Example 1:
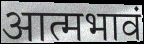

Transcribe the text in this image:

आत्मभावं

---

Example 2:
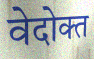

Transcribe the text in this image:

वेदोक्त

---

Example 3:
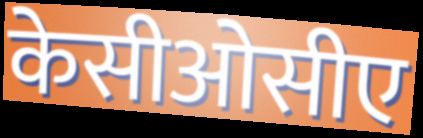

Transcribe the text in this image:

केसीओसीए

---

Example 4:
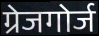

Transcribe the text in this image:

ग्रेजगोर्ज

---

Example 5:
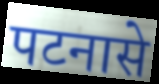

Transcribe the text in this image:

पटनासे